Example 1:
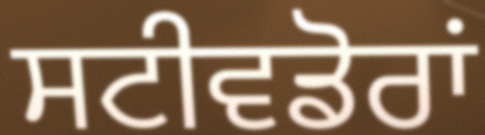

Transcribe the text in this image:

ਸਟੀਵਡੋਰਾਂ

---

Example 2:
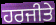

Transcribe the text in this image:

ਹਰਜੀਤੇ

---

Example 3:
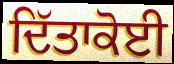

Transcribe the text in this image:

ਦਿੱਤਾਕੋਈ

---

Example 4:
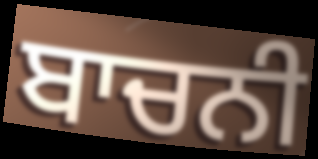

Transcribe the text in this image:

ਬਾਚਨੀ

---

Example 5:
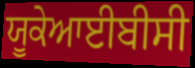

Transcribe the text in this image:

ਯੂਕੇਆਈਬੀਸੀ